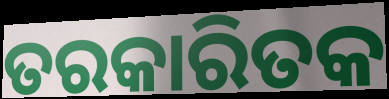
ତରକାରିତକ